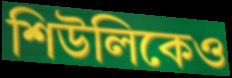
শিউলিকেও